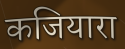
कजियारा